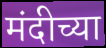
मंदीच्या